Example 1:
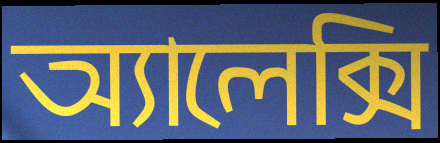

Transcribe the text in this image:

অ্যালেক্সি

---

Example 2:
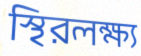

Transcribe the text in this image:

স্থিরলক্ষ্য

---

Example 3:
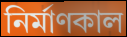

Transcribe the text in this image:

নির্মাণকাল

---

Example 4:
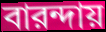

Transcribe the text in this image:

বারন্দায়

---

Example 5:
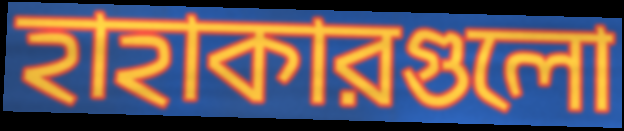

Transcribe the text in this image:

হাহাকারগুলো